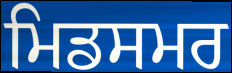
ਮਿਡਸਮਰ